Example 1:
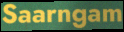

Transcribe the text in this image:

Saarngam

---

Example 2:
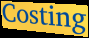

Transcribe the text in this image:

Costing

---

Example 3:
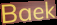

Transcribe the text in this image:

Baek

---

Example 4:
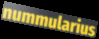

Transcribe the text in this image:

nummularius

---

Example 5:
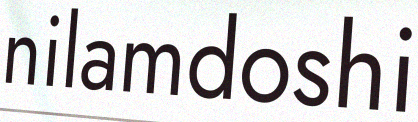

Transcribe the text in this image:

nilamdoshi